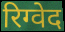
रिग्वेद